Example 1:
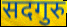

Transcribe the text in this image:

सदगुरु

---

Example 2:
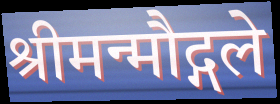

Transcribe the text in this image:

श्रीमन्मौद्गले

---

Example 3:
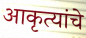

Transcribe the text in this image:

आकृत्यांचे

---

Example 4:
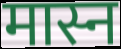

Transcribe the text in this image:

मास्न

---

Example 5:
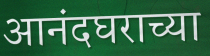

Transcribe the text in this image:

आनंदघराच्या